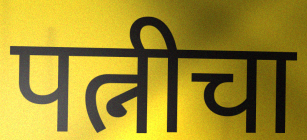
पत्नीचा